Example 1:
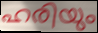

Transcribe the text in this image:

ഹരിയും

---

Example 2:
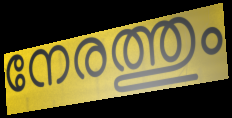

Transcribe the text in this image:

നേരത്തും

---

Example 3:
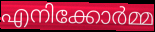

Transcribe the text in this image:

എനിക്കോർമ്മ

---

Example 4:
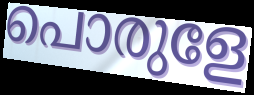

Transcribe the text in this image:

പൊരുളേ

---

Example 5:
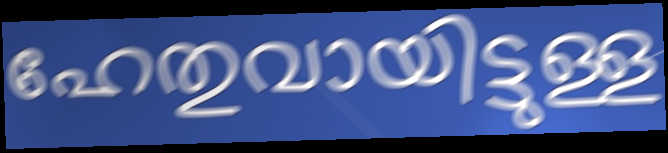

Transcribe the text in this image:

ഹേതുവായിട്ടുള്ള